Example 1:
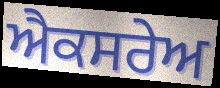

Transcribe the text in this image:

ਐਕਸਰੇਅ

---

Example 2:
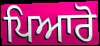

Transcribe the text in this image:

ਪਿਆਰੋ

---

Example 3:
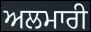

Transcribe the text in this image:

ਅਲਮਾਰੀ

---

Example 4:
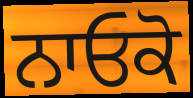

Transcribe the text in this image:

ਨਾਓਕੋ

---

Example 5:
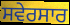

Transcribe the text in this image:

ਸਵੇਰਸਾਰ